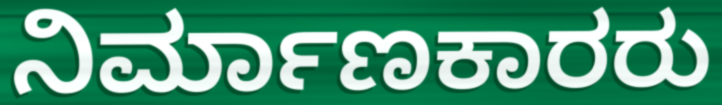
ನಿರ್ಮಾಣಕಾರರು